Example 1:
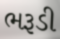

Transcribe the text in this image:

ભરૂડી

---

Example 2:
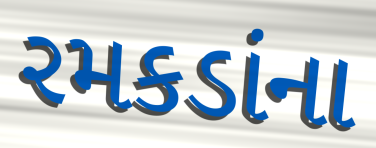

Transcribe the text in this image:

રમકડાંના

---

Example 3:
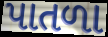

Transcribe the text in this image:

પાતળા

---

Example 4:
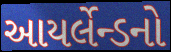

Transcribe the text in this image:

આયર્લેન્ડનો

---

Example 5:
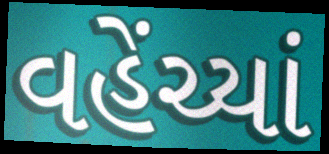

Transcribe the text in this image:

વહેંચ્યાં